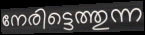
നേരിട്ടെത്തുന്ന